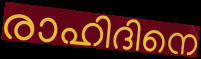
രാഹിദിനെ